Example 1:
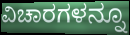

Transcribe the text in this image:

ವಿಚಾರಗಳನ್ನೂ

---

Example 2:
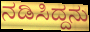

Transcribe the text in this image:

ನಡಿಸಿದ್ದನು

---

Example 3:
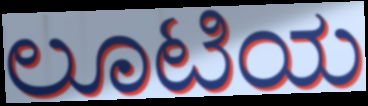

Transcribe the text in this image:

ಲೂಟಿಯ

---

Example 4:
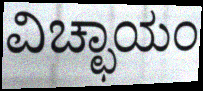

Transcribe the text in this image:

ವಿಚ್ಛಾಯಂ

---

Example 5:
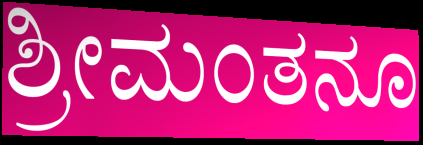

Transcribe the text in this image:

ಶ್ರೀಮಂತನೂ